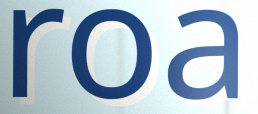
roa